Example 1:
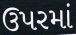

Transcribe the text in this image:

ઉપરમાં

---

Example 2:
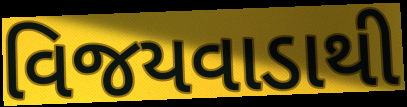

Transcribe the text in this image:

વિજયવાડાથી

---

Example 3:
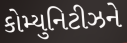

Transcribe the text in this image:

કોમ્યુનિટીઝને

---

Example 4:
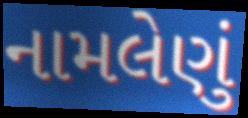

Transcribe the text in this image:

નામલેણું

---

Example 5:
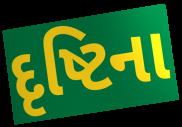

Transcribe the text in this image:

દૃષ્ટિના